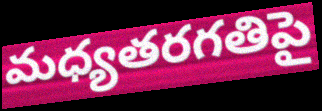
మధ్యతరగతిపై